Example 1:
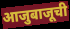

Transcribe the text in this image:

आजुबाजूची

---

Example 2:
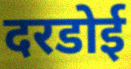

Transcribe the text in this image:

दरडोई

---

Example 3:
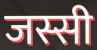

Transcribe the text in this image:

जस्सी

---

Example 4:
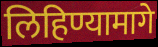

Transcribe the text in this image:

लिहिण्यामागे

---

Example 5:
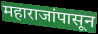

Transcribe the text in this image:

महाराजांपासून